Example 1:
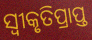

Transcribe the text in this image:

ସ୍ବୀକୃତିପ୍ରାପ୍ତ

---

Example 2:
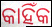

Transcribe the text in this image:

କାହିଁକ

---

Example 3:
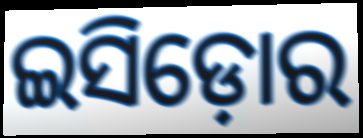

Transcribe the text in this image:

ଇସିଡ଼ୋର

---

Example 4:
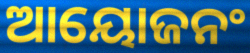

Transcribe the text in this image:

ଆୟୋଜନଂ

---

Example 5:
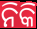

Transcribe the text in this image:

ନିକି